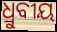
ଧ୍ରୁବୀୟ